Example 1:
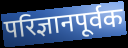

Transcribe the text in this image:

परिज्ञानपूर्वक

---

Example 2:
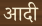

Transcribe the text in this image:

आदी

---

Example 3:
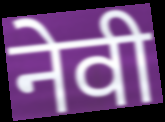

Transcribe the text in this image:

नेवी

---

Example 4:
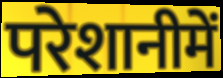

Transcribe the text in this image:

परेशानीमें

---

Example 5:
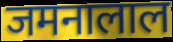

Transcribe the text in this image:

जमनालाल